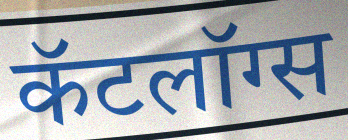
कॅटलॉग्स